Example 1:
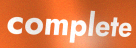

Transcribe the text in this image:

complete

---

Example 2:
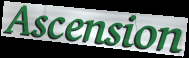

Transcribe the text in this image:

Ascension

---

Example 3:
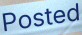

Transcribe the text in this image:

Posted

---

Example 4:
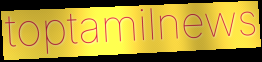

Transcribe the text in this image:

toptamilnews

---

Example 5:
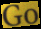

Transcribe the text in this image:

Go